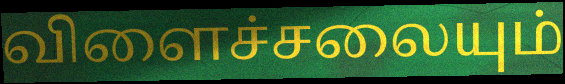
விளைச்சலையும்